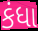
કંધા